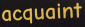
acquaint